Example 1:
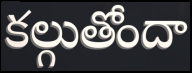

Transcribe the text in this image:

కల్గుతోందా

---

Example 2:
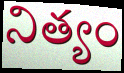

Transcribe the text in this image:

నిత్యం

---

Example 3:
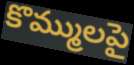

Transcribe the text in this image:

కొమ్ములపై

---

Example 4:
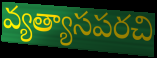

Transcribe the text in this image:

వ్యత్యాసపరచి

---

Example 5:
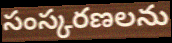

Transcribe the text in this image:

సంస్కరణలను